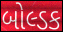
બોલ્ડક